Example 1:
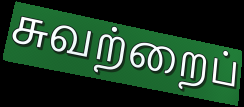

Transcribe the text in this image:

சுவற்றைப்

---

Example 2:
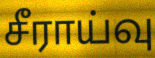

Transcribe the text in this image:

சீராய்வு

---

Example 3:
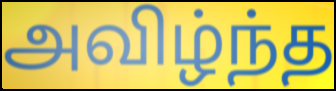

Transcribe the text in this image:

அவிழ்ந்த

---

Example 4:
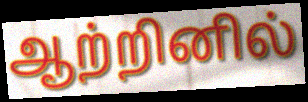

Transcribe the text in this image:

ஆற்றினில்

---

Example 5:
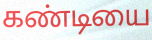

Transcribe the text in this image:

கண்டியை